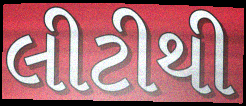
લીટીથી